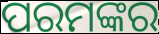
ପରମଙ୍କର